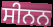
ਸੀਨਨ